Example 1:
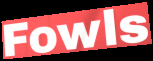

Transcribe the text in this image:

Fowls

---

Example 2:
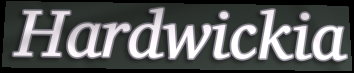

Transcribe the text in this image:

Hardwickia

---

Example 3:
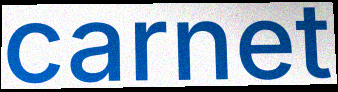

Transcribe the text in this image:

carnet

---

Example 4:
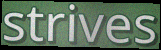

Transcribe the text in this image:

strives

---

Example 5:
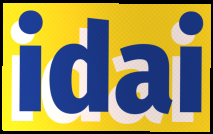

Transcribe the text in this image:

idai